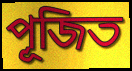
পূজিত